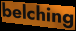
belching